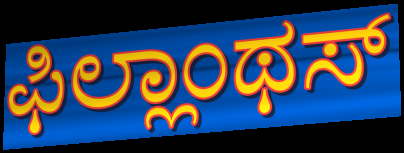
ಫಿಲ್ಲಾಂಥಸ್